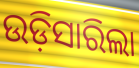
ଉଡ଼ିସାରିଲା